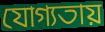
যোগ্যতায়